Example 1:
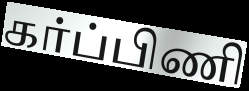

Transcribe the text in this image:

கர்ப்பிணி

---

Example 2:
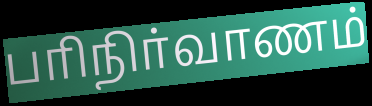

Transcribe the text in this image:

பரிநிர்வாணம்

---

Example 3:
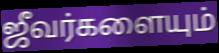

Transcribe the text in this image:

ஜீவர்களையும்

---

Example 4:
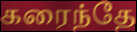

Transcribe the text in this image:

கரைந்தே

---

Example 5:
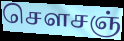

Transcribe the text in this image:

செளசஞ்